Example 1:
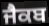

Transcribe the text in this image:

ਜੈਕਬ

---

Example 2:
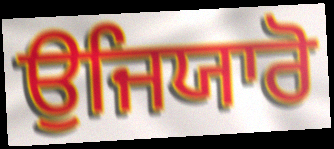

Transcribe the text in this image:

ਉਜਿਯਾਰੋ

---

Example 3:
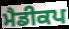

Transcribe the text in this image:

ਮੈਡੀਕਪ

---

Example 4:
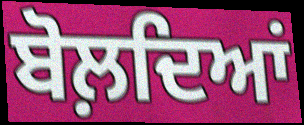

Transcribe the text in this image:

ਬੋਲ਼ਦਿਆਂ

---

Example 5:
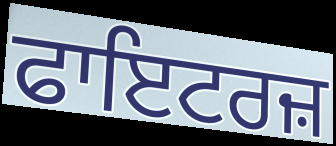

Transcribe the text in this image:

ਫਾਇਟਰਜ਼